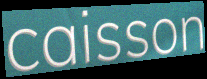
caisson